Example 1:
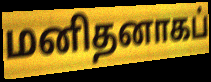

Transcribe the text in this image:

மனிதனாகப்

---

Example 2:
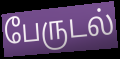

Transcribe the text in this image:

பேருடல்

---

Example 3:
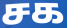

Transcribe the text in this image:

சக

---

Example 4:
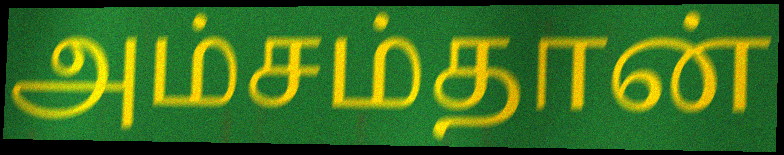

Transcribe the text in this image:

அம்சம்தான்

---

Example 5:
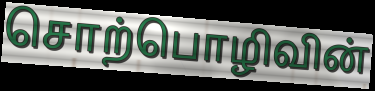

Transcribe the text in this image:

சொற்பொழிவின்